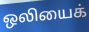
ஒலியைக்